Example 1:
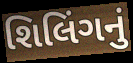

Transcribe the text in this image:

શિલિંગનું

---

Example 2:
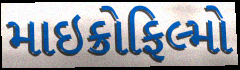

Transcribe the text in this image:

માઇક્રોફિલ્મો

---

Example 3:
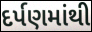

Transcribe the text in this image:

દર્પણમાંથી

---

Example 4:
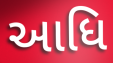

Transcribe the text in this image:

આધિ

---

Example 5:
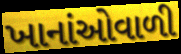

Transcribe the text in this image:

ખાનાંઓવાળી